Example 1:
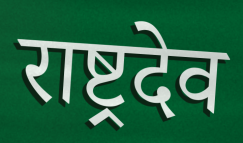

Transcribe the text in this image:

राष्ट्रदेव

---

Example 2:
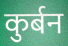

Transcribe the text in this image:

कुर्बन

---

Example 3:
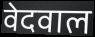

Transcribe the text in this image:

वेदवाल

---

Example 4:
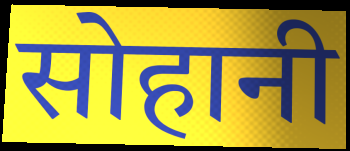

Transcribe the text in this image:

सोहानी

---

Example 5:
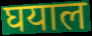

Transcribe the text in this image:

घयाल